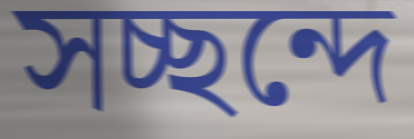
সচ্ছন্দে